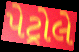
પેટ્રોલે